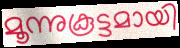
മൂന്നുകൂട്ടമായി